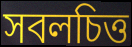
সবলচিত্ত